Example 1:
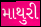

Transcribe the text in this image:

માથુરી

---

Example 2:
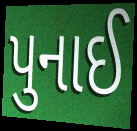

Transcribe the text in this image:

પુનાઈ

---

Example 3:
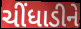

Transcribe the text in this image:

ચીંધાડીને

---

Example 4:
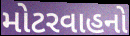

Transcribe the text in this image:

મોટરવાહનો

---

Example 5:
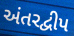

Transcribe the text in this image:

અંતરદ્વીપ